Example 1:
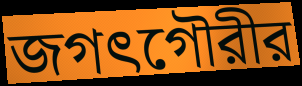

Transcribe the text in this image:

জগৎগৌরীর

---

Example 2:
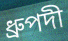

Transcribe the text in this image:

ধ্রুপদী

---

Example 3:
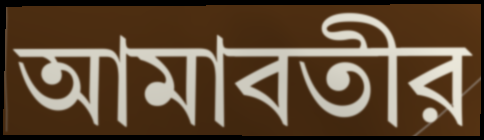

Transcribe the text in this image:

আমাবতীর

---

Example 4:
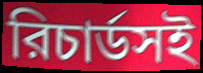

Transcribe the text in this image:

রিচার্ডসই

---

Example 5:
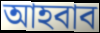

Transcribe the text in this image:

আহবাব